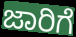
ಜಾರಿಗೆ